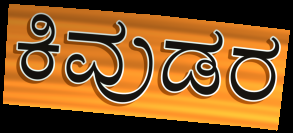
ಕಿವುಡರ